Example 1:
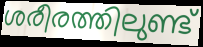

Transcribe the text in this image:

ശരീരത്തിലുണ്ട്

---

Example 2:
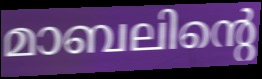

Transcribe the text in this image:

മാബലിന്റെ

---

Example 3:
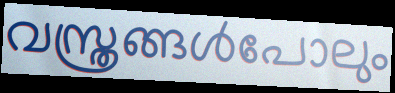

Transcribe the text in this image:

വസ്ത്രങ്ങൾപോലും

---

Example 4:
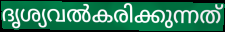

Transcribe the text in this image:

ദൃശ്യവൽകരിക്കുന്നത്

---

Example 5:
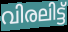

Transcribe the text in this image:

വിരലിട്ട്